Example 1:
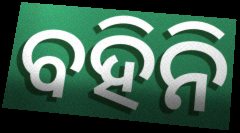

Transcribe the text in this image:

ବହିନି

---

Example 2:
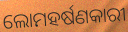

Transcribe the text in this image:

ଲୋମହର୍ଷଣକାରୀ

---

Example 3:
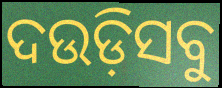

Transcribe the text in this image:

ଦଉଡ଼ିସବୁ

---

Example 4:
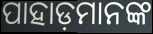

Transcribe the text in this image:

ପାହାଡ଼ମାନଙ୍କ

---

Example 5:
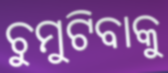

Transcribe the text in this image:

ଚୁମୁଟିବାକୁ